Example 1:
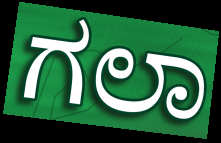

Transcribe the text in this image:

ಗಲಾ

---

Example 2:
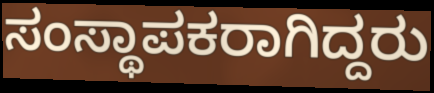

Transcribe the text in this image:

ಸಂಸ್ಥಾಪಕರಾಗಿದ್ದರು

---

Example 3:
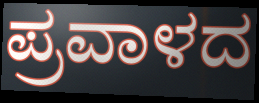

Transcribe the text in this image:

ಪ್ರವಾಳದ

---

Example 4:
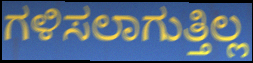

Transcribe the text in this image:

ಗಳಿಸಲಾಗುತ್ತಿಲ್ಲ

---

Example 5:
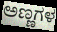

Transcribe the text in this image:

ಅಣ್ಣಗಳ